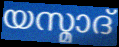
യസ്മാദ്